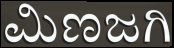
ಮಿಣಜಗಿ